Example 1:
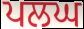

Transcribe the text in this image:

ਪਲਘ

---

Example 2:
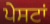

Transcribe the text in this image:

ਪੇਸਟਾਂ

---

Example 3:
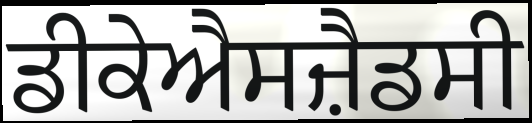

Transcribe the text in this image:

ਡੀਕੇਐਸਜ਼ੈਡਸੀ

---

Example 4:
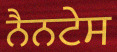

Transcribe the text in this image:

ਨੈਨਟੇਸ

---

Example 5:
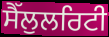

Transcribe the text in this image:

ਸੈੱਲੁਲਰਿਟੀ